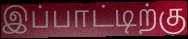
இப்பாட்டிற்கு